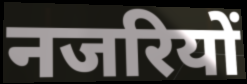
नजरियों